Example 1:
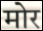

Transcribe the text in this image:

मोर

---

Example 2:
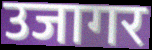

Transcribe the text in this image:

उजागर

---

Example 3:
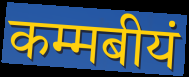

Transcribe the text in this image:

कम्मबीयं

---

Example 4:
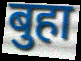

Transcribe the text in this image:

बुहा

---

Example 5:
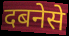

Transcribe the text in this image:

दबनेसे